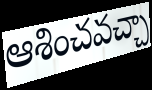
ఆశించవచ్చా